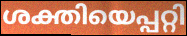
ശക്തിയെപ്പറ്റി